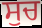
ਸੁਚ